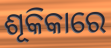
ଶୂକିକାରେ